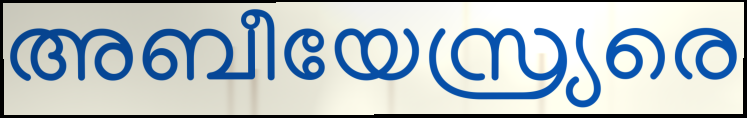
അബീയേസ്ര്യരെ